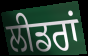
ਲੀਡਰਾਂ